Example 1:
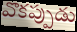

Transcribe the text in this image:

వొకప్పుడు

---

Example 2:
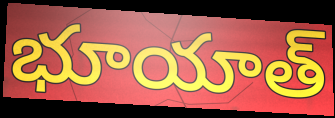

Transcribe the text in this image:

భూయాత్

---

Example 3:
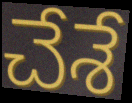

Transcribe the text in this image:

చేశే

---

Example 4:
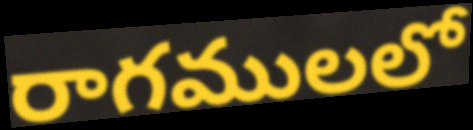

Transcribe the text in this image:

రాగములలో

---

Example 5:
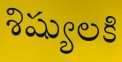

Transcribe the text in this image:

శిష్యులకి